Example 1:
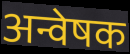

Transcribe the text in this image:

अन्वेषक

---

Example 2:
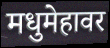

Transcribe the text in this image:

मधुमेहावर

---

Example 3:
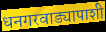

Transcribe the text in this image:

धनगरवाड्यापाशी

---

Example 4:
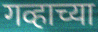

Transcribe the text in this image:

गव्हाच्या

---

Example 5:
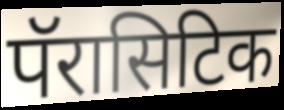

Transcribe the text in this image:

पॅरासिटिक